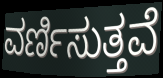
ವರ್ಣಿಸುತ್ತವೆ